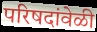
परिषदांवेळी